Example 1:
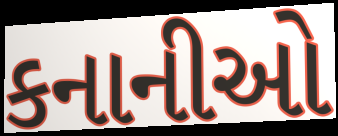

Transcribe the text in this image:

કનાનીઓ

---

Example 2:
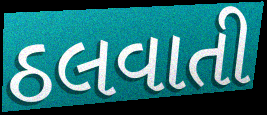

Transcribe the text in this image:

ઠલવાતી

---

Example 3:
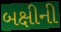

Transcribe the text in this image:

બક્ષીની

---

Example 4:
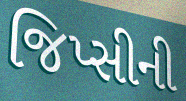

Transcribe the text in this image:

જિપ્સીની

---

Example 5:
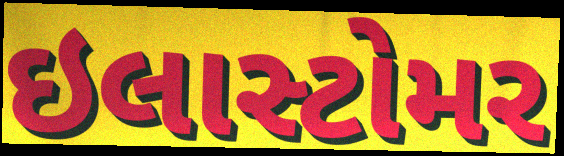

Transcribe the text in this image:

ઇલાસ્ટોમર